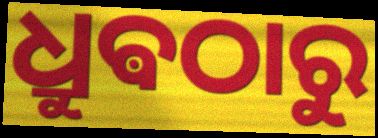
ଧ୍ରୁଵଠାରୁ